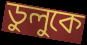
ডুলুকে